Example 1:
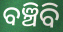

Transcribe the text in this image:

ବଞ୍ଚିବି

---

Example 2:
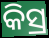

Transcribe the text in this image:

କିସ୍ର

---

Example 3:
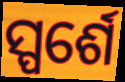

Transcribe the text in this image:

ସ୍ପର୍ଶେ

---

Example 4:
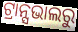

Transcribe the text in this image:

ଟ୍ରାନ୍ସଭାଲରୁ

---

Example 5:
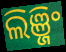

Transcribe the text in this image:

ଲିଞ୍ଜିଂ